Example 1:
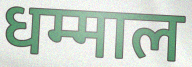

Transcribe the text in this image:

धम्माल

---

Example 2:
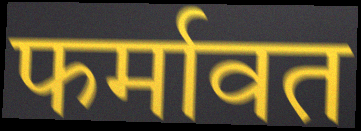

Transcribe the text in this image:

फर्मावत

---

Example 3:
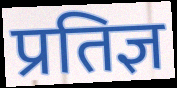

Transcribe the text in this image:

प्रतिज्ञ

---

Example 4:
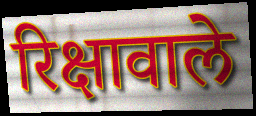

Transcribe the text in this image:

रिक्षावाले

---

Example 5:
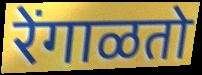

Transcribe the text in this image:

रेंगाळतो